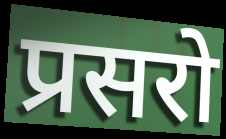
प्रसरो